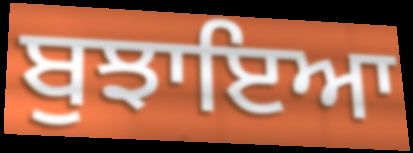
ਬੁਝਾਇਆ